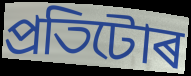
প্ৰতিটোৰ